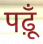
पढ़ूँ